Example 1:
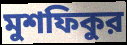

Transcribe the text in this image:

মুশফিকুর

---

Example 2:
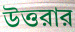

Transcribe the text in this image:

উত্তরার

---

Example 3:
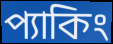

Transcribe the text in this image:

প্যাকিং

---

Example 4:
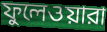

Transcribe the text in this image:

ফুলেওয়ারা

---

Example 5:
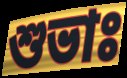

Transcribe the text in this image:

শুভাঃ